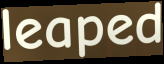
leaped